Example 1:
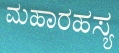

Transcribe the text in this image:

ಮಹಾರಹಸ್ಯ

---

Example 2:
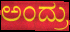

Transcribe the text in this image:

ಅಂದ್ರು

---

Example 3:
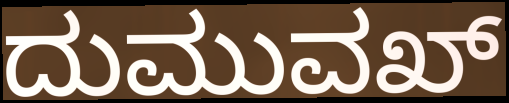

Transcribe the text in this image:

ದುಮುವಖ್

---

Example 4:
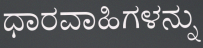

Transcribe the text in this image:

ಧಾರವಾಹಿಗಳನ್ನು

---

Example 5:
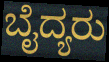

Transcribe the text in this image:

ಬೈದ್ಯರು